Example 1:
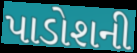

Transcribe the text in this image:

પાડોશની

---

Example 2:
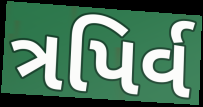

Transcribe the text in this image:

ત્રપિર્વ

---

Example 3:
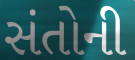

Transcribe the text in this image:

સંતોની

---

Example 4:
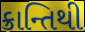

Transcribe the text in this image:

ક્રાન્તિથી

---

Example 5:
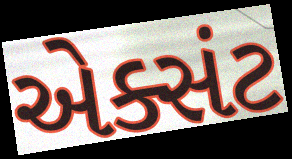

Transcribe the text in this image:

એક્સંટ